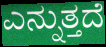
ಎನ್ನುತ್ತದೆ